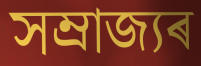
সম্ৰাজ্যৰ